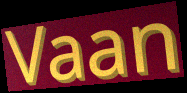
Vaan